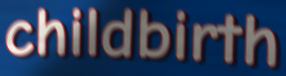
childbirth